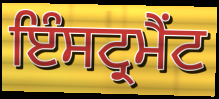
ਇੰਸਟ੍ਰਮੈਂਟ